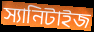
স্যানিটাইজ